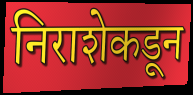
निराशेकडून